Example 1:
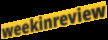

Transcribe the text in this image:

weekinreview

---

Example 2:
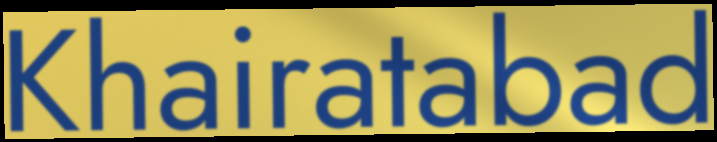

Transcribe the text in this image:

Khairatabad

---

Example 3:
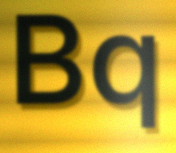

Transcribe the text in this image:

Bq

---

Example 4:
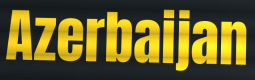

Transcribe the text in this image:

Azerbaijan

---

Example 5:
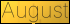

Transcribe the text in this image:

August